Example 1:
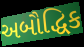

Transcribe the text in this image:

અબૌદ્ધિક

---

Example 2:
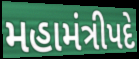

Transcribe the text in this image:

મહામંત્રીપદે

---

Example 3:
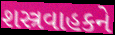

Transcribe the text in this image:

શસ્ત્રવાહકને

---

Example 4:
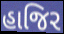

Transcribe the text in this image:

હાજિર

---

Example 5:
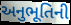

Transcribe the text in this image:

અનુભૂતિની